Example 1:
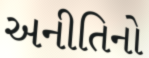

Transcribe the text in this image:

અનીતિનો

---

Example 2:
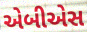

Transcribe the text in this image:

એબીએસ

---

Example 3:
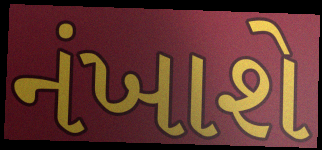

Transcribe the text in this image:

નંખાશે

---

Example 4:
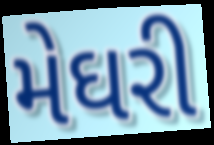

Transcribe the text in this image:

મેઘરી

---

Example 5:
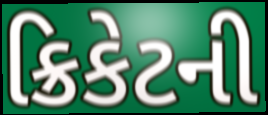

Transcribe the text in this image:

ક્રિકેટની